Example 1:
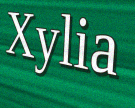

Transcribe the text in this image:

Xylia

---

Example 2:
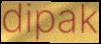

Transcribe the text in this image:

dipak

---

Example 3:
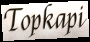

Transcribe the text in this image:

Topkapi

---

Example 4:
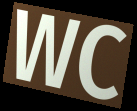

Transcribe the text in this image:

WC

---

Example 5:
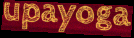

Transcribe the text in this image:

upayoga